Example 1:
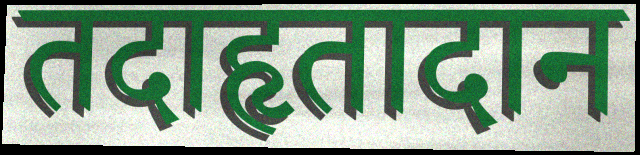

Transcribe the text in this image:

तदाहृतादान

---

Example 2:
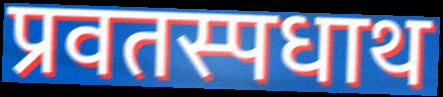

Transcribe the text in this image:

प्रवतस्पधाथ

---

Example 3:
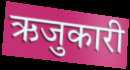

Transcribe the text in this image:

ऋजुकारी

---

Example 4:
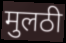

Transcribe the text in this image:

मुलठी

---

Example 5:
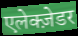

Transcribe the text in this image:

एलेक्ज़ेडर